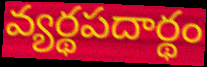
వ్యర్థపదార్థం